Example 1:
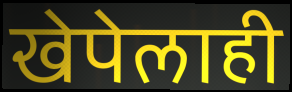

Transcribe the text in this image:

खेपेलाही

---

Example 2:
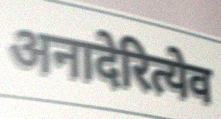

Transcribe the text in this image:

अनादेरित्येव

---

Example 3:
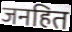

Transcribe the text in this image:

जनहित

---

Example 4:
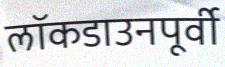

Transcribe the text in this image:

लॉकडाउनपूर्वी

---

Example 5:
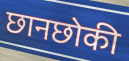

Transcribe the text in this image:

छानछोकी